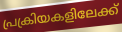
പ്രക്രിയകളിലേക്ക്